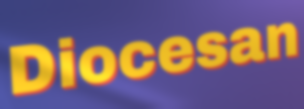
Diocesan